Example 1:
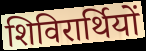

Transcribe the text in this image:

शिविरार्थियों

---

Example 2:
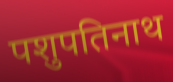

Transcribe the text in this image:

पशुपतिनाथ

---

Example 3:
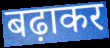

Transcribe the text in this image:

बढ़ाकर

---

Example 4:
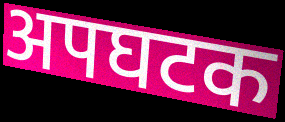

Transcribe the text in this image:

अपघटक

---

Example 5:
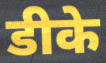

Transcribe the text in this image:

डीके